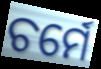
ଚର୍ମେ